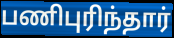
பணிபுரிந்தார்